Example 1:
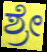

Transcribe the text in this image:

ಶ್ರೇ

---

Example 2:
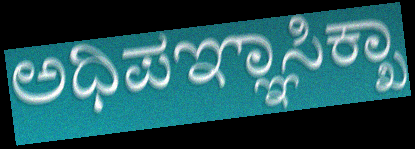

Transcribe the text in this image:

ಅಧಿಪಞ್ಞಾಸಿಕ್ಖಾ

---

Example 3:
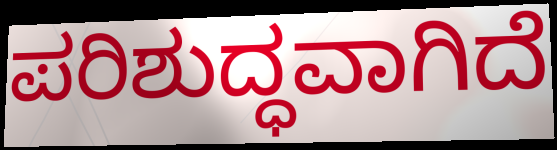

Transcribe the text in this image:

ಪರಿಶುದ್ಧವಾಗಿದೆ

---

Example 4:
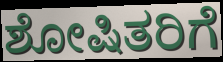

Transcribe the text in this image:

ಶೋಷಿತರಿಗೆ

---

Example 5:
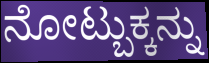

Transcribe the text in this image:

ನೋಟ್ಬುಕ್ಕನ್ನು